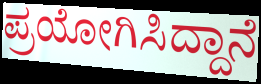
ಪ್ರಯೋಗಿಸಿದ್ದಾನೆ